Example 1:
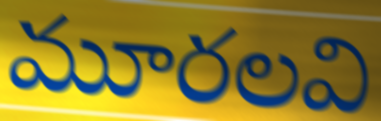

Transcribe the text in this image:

మూరలవి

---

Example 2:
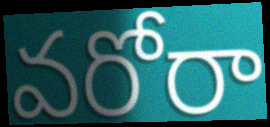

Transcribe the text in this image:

వరోరా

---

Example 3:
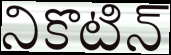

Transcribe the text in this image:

నికొటిన్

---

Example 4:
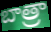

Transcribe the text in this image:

బాత్రా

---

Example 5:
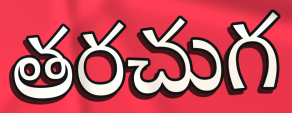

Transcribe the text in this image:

తరచుగ